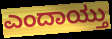
ಎಂದಾಯ್ತು